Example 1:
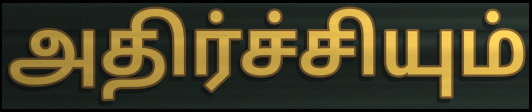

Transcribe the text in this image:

அதிர்ச்சியும்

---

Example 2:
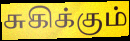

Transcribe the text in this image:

சுகிக்கும்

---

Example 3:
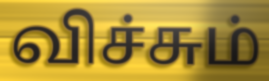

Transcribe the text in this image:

விச்சும்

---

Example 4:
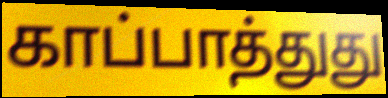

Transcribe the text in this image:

காப்பாத்துது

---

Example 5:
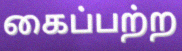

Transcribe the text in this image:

கைப்பற்ற